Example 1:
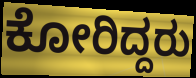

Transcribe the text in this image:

ಕೋರಿದ್ದರು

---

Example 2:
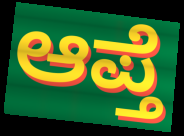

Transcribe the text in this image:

ಆಪ್ತೆ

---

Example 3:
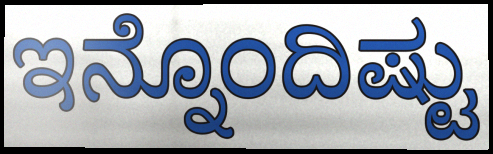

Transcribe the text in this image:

ಇನ್ನೊಂದಿಷ್ಟು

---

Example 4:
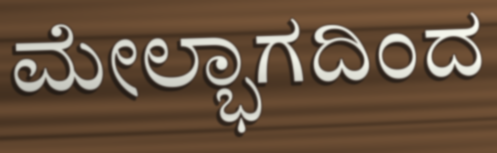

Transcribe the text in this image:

ಮೇಲ್ಭಾಗದಿಂದ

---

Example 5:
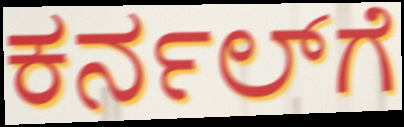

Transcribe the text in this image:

ಕರ್ನಲ್‌ಗೆ